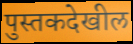
पुस्तकदेखील